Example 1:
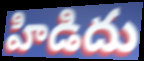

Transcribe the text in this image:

హిడిదు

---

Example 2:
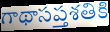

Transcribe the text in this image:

గాథాసప్తశతికి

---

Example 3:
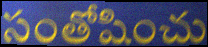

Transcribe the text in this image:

సంతోషించు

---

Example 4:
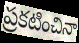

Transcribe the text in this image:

ప్రకటించినా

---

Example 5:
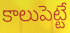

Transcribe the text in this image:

కాలుపెట్టే